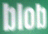
blob